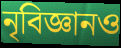
নৃবিজ্ঞানও